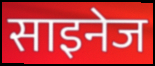
साइनेज